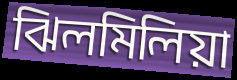
ঝিলমিলিয়া